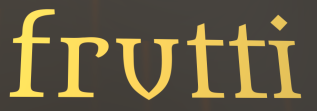
frutti